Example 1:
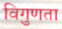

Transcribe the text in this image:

विगुणता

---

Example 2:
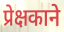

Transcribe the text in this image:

प्रेक्षकाने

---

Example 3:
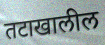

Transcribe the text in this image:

तटाखालील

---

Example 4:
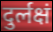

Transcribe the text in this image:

दुर्लक्षं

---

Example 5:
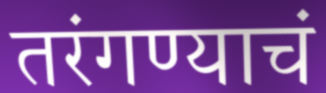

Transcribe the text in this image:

तरंगण्याचं